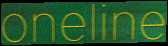
oneline